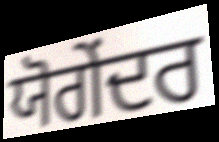
ਯੋਗੇਂਦਰ